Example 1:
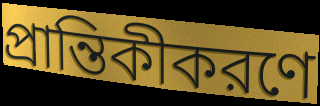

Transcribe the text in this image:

প্রান্তিকীকরণে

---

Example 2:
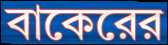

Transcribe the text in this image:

বাকেরের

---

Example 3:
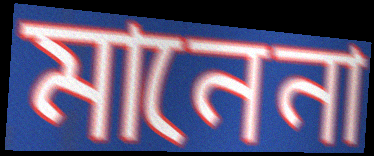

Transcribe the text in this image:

মানেনা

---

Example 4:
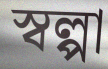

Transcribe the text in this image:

স্বল্পা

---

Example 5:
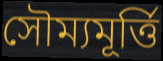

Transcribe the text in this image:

সৌম্যমূর্ত্তি